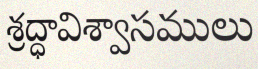
శ్రద్ధావిశ్వాసములు